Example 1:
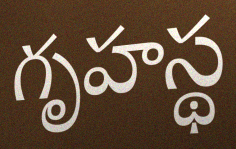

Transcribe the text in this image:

గృహస్థ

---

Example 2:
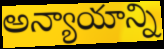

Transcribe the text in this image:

అన్యాయాన్ని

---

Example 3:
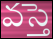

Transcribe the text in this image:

వస్తె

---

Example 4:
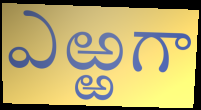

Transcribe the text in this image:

ఎఱ్ఱగా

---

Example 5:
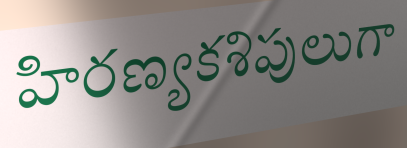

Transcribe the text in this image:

హిరణ్యకశిపులుగా